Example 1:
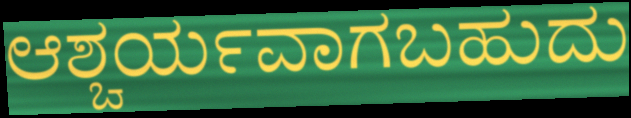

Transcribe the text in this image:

ಆಶ್ಚರ್ಯವಾಗಬಹುದು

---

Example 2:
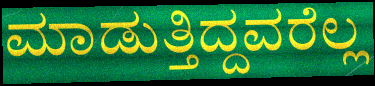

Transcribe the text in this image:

ಮಾಡುತ್ತಿದ್ದವರೆಲ್ಲ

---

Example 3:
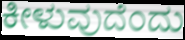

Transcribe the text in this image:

ಕೀಳುವುದೆಂದು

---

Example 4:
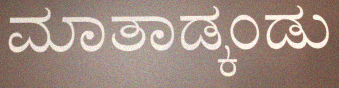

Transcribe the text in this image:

ಮಾತಾಡ್ಕಂಡು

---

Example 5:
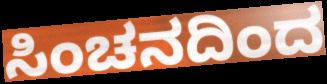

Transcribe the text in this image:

ಸಿಂಚನದಿಂದ